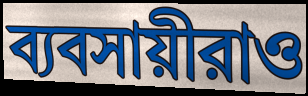
ব্যবসায়ীরাও